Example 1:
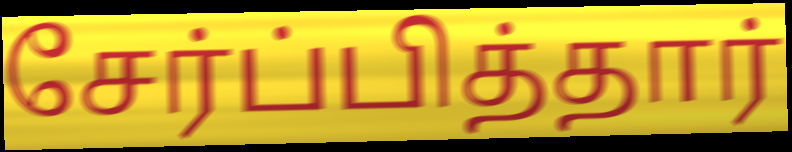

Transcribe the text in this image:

சேர்ப்பித்தார்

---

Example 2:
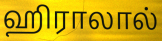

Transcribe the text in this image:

ஹிராலால்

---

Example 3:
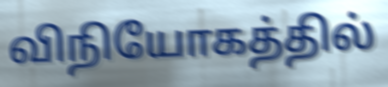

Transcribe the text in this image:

விநியோகத்தில்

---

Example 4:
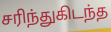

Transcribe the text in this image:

சரிந்துகிடந்த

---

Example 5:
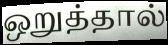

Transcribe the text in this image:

ஒறுத்தால்